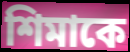
শিমাকে